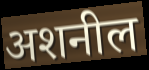
अशनील